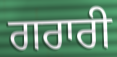
ਗਰਾਰੀ